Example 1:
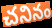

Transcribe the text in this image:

చనినం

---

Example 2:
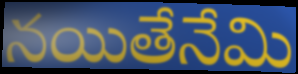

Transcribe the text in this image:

నయితేనేమి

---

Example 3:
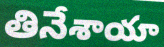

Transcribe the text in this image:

తినేశాయా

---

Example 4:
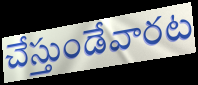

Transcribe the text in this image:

చేస్తుండేవారట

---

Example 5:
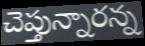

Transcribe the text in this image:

చెప్తున్నారన్న